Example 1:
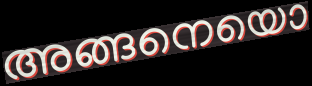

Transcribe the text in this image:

അങ്ങനെയൊ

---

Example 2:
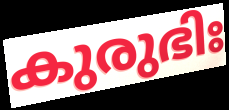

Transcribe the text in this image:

കുരുഭിഃ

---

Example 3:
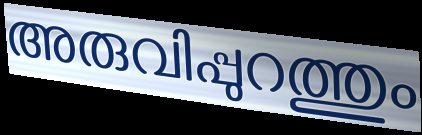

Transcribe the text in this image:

അരുവിപ്പുറത്തും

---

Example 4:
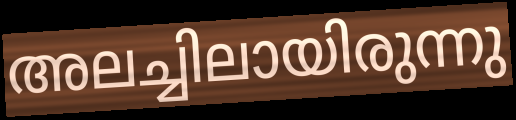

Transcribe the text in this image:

അലച്ചിലായിരുന്നു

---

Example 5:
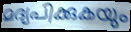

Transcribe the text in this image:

മദ്യപിക്കുകയും